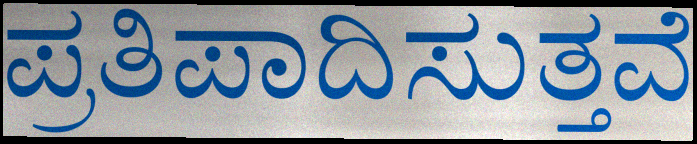
ಪ್ರತಿಪಾದಿಸುತ್ತವೆ